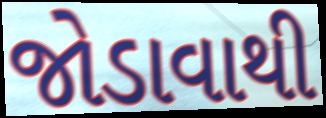
જોડાવાથી